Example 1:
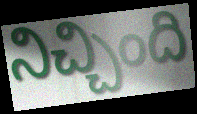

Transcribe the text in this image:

నిచ్చింది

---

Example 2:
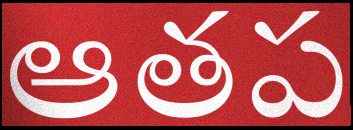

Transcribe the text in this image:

ఆతప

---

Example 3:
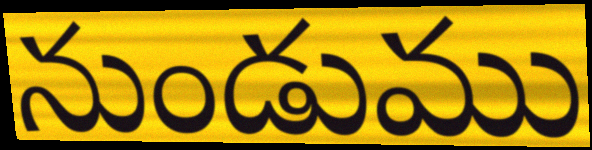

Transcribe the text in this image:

నుండుము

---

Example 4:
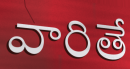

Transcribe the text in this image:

వారితే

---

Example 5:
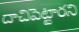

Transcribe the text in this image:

దాచిపెట్టారని